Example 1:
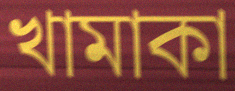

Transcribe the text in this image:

খামাকা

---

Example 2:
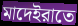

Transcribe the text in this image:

মাদেইরাতে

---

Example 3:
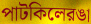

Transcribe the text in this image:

পাটকিলেরঙা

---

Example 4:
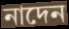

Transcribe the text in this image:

নাদেন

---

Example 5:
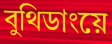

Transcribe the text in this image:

বুথিডাংয়ে